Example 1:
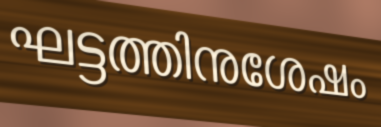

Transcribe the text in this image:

ഘട്ടത്തിനുശേഷം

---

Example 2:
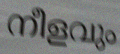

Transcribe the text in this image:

നീളവും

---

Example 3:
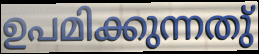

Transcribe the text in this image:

ഉപമിക്കുന്നതു്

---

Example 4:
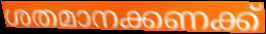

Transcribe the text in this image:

ശതമാനക്കണക്ക്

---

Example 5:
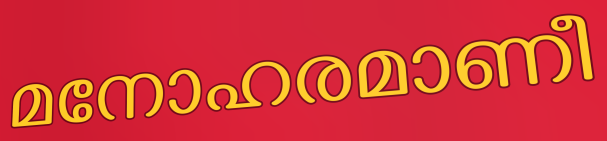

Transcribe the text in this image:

മനോഹരമാണീ